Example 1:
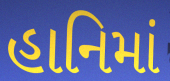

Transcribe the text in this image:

હાનિમાં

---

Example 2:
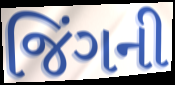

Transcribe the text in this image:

જિંગની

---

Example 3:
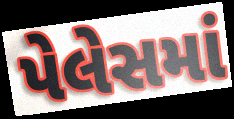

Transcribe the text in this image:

પેલેસમાં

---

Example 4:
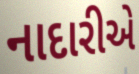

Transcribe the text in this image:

નાદારીએ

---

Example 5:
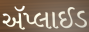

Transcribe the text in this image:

ઍપ્લાઈડ